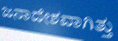
ಜನಾದೇಶವಾಗಿತ್ತು